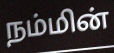
நம்மின்